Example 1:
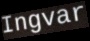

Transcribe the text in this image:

Ingvar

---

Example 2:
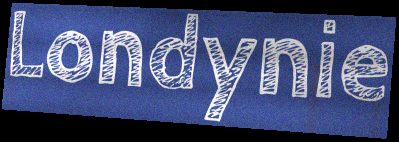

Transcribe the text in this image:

Londynie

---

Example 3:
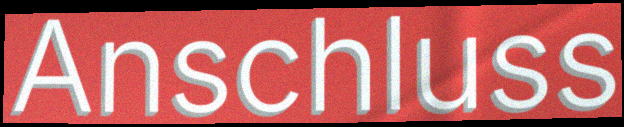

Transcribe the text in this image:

Anschluss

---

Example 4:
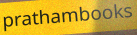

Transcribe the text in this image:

prathambooks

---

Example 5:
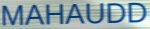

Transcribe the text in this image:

MAHAUDD